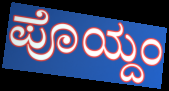
ಪೊಯ್ದಂ